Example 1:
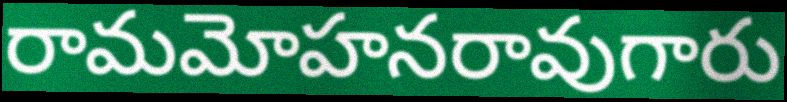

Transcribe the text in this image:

రామమోహనరావుగారు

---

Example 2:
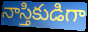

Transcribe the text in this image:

నాస్తికుడిగా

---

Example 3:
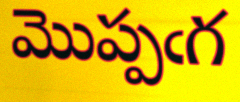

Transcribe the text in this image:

మొప్పఁగ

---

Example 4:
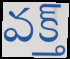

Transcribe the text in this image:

వక్త్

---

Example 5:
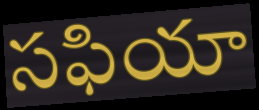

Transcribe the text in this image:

సఫియా